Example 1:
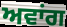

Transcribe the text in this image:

ਅਵਾਂਗ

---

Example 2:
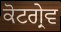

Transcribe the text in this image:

ਕੋਟਗ੍ਰੇਵ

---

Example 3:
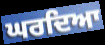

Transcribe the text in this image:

ਘਰਦਿਆ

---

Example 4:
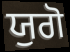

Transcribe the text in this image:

ਯੁਗੋ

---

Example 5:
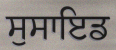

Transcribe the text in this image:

ਸੁਸਾਇਡ